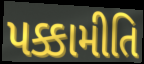
પક્કામીતિ